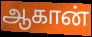
ஆகான்